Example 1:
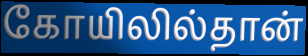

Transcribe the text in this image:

கோயிலில்தான்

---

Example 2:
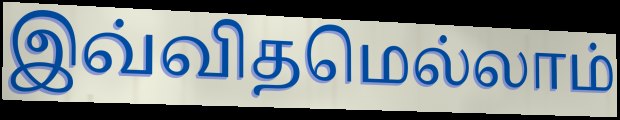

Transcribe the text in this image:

இவ்விதமெல்லாம்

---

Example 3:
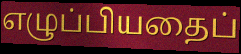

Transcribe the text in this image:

எழுப்பியதைப்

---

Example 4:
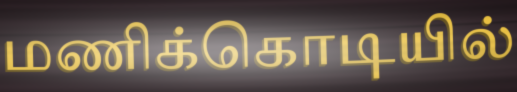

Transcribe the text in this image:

மணிக்கொடியில்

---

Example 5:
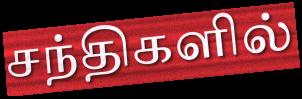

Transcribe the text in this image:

சந்திகளில்